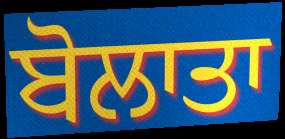
ਬੋਲਾਤਾ